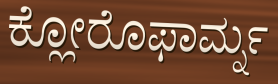
ಕ್ಲೋರೊಫಾರ್ಮ್ನ